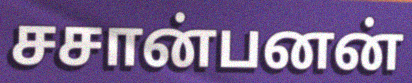
சசான்பனன்